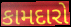
કામદારો